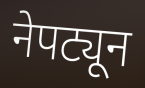
नेपट्यून